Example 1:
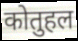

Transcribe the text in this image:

कोतुहल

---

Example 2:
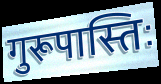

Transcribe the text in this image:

गुरूपास्तिः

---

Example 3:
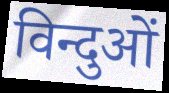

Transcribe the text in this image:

विन्दुओं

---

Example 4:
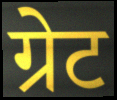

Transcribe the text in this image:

ग्रेट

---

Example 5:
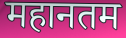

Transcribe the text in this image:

महानतम